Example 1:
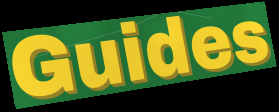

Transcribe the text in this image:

Guides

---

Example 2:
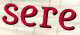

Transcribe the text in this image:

sere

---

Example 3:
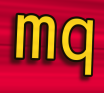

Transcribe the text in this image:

mq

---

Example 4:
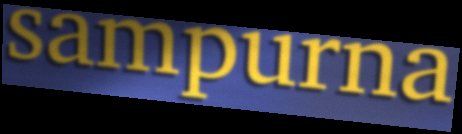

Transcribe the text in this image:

sampurna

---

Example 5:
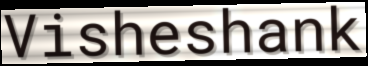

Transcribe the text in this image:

Visheshank